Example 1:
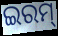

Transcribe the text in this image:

ଇରମ୍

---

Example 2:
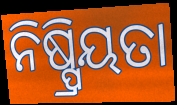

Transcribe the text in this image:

ନିଷ୍ପ୍ରିୟତା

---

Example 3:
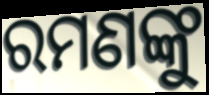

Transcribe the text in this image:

ରମଣଙ୍କୁ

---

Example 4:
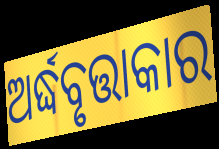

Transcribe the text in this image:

ଅର୍ଦ୍ଧବୃତ୍ତାକାର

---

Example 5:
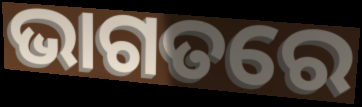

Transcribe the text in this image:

ଭାଗତରେ